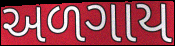
અળગાય